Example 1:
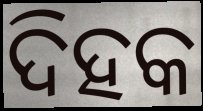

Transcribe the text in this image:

ଦିହକ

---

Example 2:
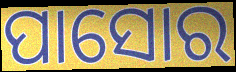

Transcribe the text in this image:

ପାସୋର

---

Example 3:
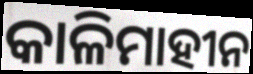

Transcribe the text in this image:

କାଳିମାହୀନ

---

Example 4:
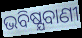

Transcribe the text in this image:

ଭବିଷ୍ଯବାଣୀ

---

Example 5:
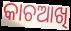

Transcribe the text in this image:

କାଚଆଖି